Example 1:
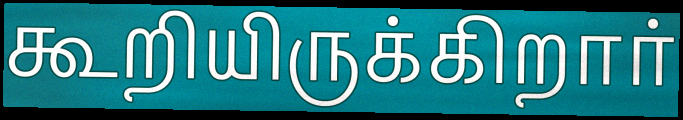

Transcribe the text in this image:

கூறியிருக்கிறார்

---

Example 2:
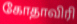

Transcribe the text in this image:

கோதாவிரி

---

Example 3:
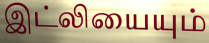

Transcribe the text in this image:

இட்லியையும்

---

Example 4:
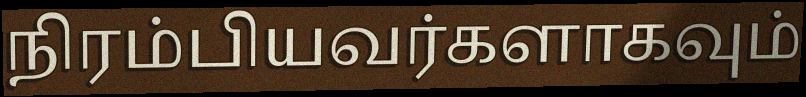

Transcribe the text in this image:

நிரம்பியவர்களாகவும்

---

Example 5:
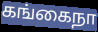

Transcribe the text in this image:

கங்கைநா